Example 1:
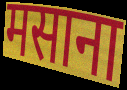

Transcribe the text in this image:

मसाना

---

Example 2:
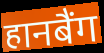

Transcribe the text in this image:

हानबैंग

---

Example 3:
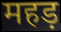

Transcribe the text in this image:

महड़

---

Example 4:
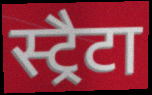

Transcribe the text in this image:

स्ट्रैटा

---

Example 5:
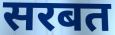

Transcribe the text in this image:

सरबत